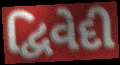
દ્વિવેદી